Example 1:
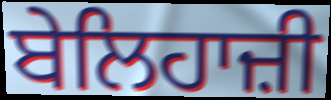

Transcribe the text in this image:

ਬੇਲਿਹਾਜ਼ੀ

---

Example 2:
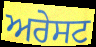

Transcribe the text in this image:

ਅਰੇਸਟ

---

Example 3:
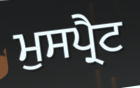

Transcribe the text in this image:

ਮੁਸਪ੍ਰੈਟ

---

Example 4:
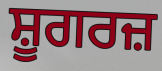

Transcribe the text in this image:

ਸ਼ੂਗਰਜ਼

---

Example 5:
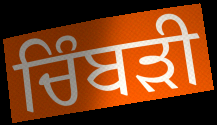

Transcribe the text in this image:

ਚਿੰਬੜੀ